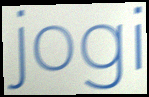
jogi